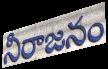
నీరాజనం